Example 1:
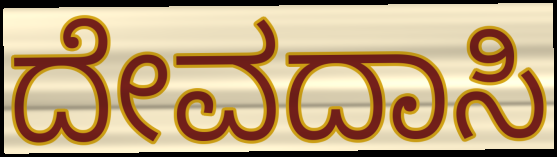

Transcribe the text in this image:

ದೇವದಾಸಿ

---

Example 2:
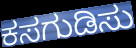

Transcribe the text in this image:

ಕಸಗುಡಿಸು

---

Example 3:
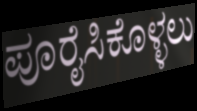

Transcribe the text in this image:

ಪೂರೈಸಿಕೊಳ್ಳಲು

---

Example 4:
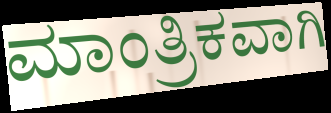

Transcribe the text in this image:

ಮಾಂತ್ರಿಕವಾಗಿ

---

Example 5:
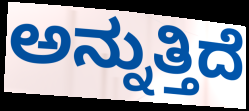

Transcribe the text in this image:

ಅನ್ನುತ್ತಿದೆ